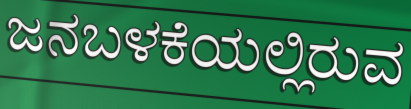
ಜನಬಳಕೆಯಲ್ಲಿರುವ